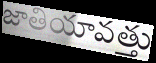
జాతియావత్తు